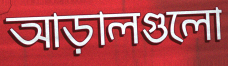
আড়ালগুলো